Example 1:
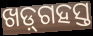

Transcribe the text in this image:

ଖଡ଼୍‌ଗହସ୍ତ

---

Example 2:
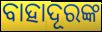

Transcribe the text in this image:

ବାହାଦୂରଙ୍କ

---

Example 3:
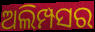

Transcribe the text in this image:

ଅଲିମ୍ପସର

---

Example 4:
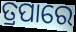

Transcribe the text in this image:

ତ୍ରପାରେ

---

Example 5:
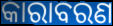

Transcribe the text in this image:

କାରାବରଣ